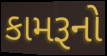
કામરૂનો